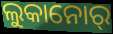
ଲୁକାନୋର୍